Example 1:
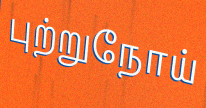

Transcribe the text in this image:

புற்றுநோய்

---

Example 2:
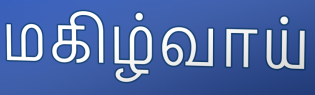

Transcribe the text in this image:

மகிழ்வாய்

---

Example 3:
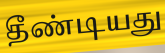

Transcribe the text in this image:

தீண்டியது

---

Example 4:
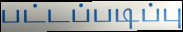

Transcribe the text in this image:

பட்டப்படிப்பு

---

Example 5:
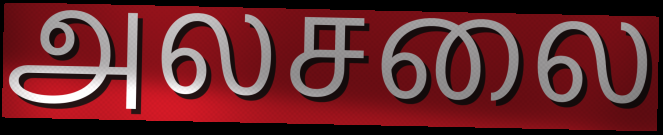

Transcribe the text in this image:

அலசலை